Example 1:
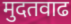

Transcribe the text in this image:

मुदतवाढ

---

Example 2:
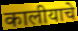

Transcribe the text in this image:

कालीयाचे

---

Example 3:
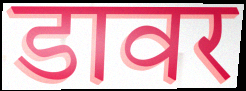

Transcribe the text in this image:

डावर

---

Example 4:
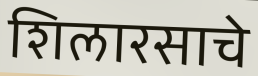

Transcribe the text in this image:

शिलारसाचे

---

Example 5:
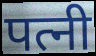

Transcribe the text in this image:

पत्नी